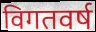
विगतवर्ष